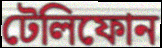
টেলিফোন